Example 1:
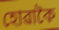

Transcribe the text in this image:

হোৱাকৈ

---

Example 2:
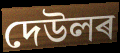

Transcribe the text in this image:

দেউলৰ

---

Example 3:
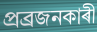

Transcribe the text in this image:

প্ৰব্ৰজনকাৰী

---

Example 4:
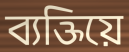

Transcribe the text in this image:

ব্যক্তিয়ে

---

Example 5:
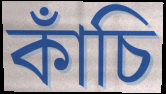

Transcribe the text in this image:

কাঁচি